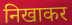
निखाकर